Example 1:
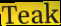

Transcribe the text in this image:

Teak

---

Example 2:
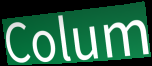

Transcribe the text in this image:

Colum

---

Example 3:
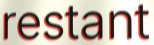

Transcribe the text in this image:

restant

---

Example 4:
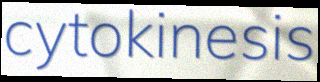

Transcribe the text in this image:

cytokinesis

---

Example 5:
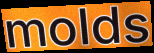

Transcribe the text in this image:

molds